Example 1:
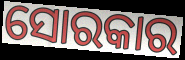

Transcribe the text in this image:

ସୋରକାର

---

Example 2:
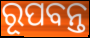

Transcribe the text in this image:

ରୂପବନ୍ତ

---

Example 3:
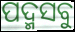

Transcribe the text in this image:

ପଦ୍ମସବୁ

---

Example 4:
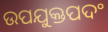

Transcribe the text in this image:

ଉପଯୁକ୍ତପଦଂ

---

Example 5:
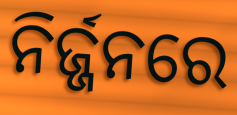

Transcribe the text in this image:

ନିର୍ଜ୍ଜନରେ